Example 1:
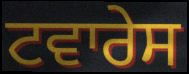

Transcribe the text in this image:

ਟਵਾਰੇਸ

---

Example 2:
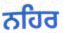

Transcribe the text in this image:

ਨਹਿਰ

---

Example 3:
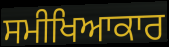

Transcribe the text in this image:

ਸਮੀਖਿਆਕਾਰ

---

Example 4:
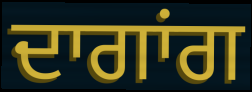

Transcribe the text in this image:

ਦਾਗਾਂਗ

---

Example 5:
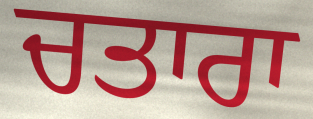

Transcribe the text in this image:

ਚਤਾਰਾ